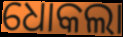
ଧୋକଲା